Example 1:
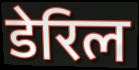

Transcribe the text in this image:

डेरिल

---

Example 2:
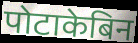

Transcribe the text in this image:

पोटाकेबिन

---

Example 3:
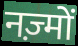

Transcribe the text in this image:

नज़्मों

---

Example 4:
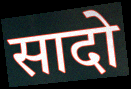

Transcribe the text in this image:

सादो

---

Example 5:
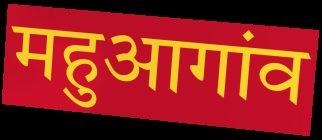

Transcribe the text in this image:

महुआगांव